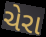
ચેરા